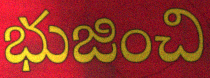
భుజించి